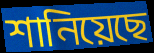
শানিয়েছে